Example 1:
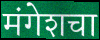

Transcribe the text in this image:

मंगेशचा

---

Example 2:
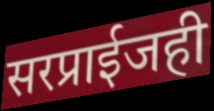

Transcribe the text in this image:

सरप्राईजही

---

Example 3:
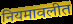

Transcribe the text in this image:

नियमावलीत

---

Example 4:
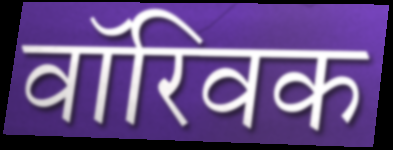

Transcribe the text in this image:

वॉरिवक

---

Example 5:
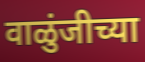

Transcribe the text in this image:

वाळुंजीच्या